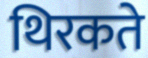
थिरकते